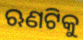
ଋଣଟିକୁ